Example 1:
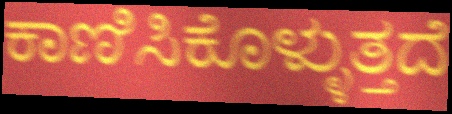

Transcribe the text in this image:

ಕಾಣಿಸಿಕೊಳ್ಳುತ್ತದೆ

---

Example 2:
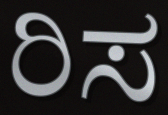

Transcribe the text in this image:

ರಿಸ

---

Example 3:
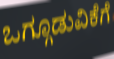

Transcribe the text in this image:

ಒಗ್ಗೂಡುವಿಕೆಗೆ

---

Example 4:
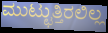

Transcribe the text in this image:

ಮುಟ್ಟುತ್ತಿರಲಿಲ್ಲ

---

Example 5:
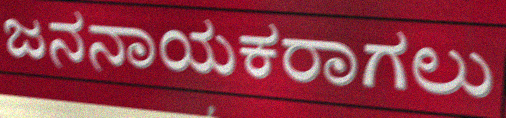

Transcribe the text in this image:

ಜನನಾಯಕರಾಗಲು